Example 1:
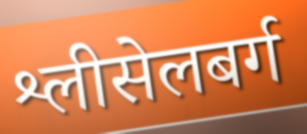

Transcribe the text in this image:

श्लीसेलबर्ग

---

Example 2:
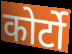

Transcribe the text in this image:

कोर्टो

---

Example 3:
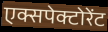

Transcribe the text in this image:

एक्सपेक्टोरेंट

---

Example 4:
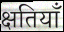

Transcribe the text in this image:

क्षतियाँ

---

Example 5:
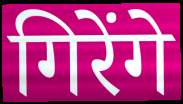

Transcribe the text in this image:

गिरेंगे